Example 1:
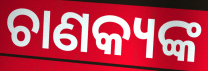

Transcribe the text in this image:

ଚାଣକ୍ୟଙ୍କ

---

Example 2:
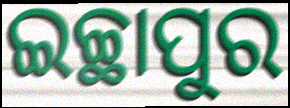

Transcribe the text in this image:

ଇଚ୍ଛାପୁର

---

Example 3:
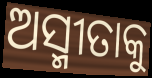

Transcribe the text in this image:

ଅସ୍ମୀତାକୁ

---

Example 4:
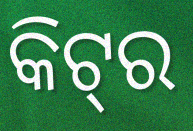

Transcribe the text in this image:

କିଟ୍‌ର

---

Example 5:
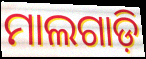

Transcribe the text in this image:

ମାଲଗାଡ଼ି